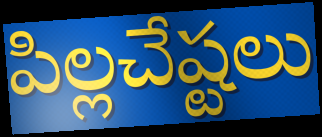
పిల్లచేష్టలు